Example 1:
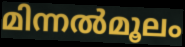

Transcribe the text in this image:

മിന്നൽമൂലം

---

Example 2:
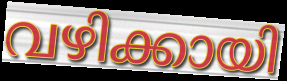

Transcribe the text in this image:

വഴിക്കായി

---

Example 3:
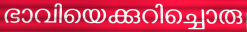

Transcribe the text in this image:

ഭാവിയെക്കുറിച്ചൊരു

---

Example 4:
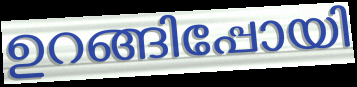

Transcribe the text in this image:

ഉറങ്ങിപ്പോയി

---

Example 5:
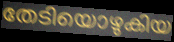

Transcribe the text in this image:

തേടിയൊഴുകിയ